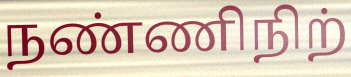
நண்ணிநிற்